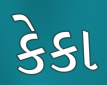
કેકા